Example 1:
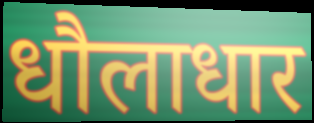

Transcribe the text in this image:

धौलाधार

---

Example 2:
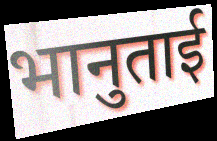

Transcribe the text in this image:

भानुताई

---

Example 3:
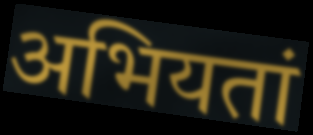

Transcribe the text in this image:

अभियतां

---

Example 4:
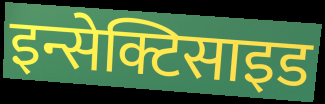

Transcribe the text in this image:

इन्सेक्टिसाइड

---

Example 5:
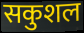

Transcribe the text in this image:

सकुशल